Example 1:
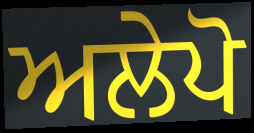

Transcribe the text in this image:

ਅਲੇਪੋ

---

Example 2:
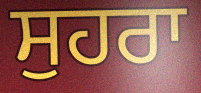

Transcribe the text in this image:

ਸੁਹਰਾ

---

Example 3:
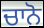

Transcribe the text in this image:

ਚਾਨੋ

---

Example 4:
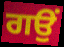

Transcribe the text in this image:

ਗਉਂ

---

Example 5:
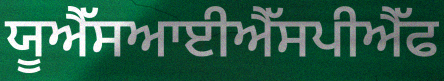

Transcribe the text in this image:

ਯੂਐੱਸਆਈਐੱਸਪੀਐੱਫ